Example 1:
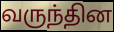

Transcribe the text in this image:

வருந்தின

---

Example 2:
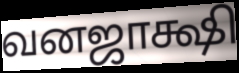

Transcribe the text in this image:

வனஜாக்ஷி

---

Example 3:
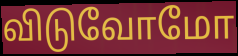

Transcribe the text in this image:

விடுவோமோ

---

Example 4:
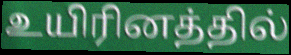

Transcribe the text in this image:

உயிரினத்தில்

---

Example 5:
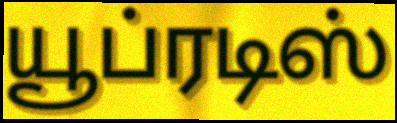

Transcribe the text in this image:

யூப்ரடிஸ்